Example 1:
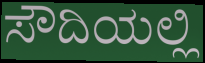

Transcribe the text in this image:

ಸೌದಿಯಲ್ಲಿ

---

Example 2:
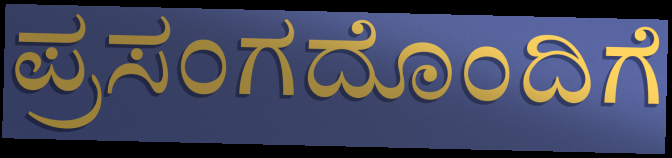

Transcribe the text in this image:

ಪ್ರಸಂಗದೊಂದಿಗೆ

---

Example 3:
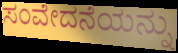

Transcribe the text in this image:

ಸಂವೇದನೆಯನ್ನು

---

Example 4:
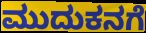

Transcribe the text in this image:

ಮುದುಕನಗೆ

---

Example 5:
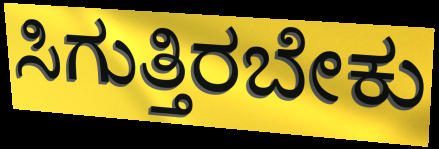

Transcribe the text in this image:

ಸಿಗುತ್ತಿರಬೇಕು